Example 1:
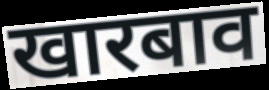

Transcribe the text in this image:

खारबाव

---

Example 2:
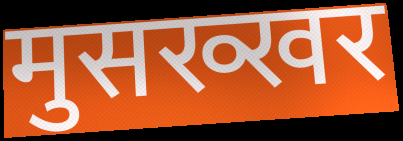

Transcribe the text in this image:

मुसख्खर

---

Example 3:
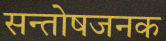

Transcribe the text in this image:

सन्तोषजनक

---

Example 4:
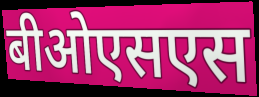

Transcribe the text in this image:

बीओएसएस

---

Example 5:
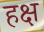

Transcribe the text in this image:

हक्ष